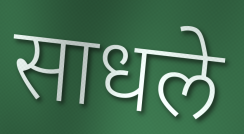
साधले